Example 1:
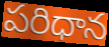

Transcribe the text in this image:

పరిధాన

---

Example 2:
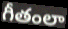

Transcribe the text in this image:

గీతంలా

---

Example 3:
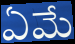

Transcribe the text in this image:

ఏమే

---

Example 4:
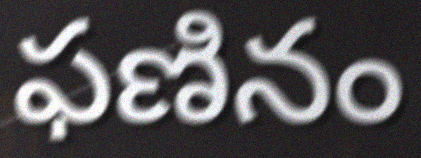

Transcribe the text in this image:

ఫణినం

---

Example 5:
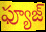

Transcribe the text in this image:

ఫ్యూజ్